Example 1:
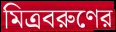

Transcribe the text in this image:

মিত্রবরুণের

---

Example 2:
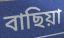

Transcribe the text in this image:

বাছিয়া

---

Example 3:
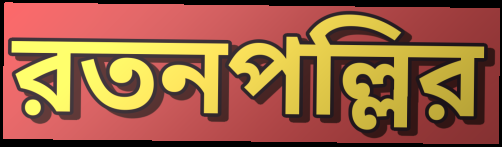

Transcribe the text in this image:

রতনপল্লির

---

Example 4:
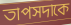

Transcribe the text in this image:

তাপসদাকে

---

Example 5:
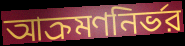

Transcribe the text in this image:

আক্রমণনির্ভর